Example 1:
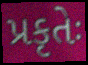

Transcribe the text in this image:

પ્રકૃતેઃ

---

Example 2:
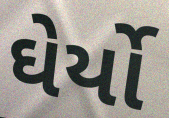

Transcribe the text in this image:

ઘેર્યો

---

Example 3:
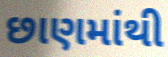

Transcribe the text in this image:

છાણમાંથી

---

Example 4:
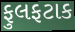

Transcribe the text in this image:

ફુલફટાક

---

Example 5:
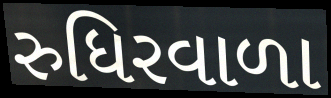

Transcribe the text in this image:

રુધિરવાળા